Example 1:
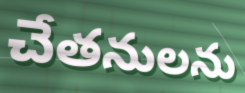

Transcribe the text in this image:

చేతనులను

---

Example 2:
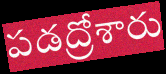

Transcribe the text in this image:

పడద్రోశారు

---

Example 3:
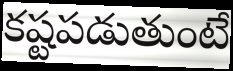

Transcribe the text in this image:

కష్టపడుతుంటే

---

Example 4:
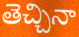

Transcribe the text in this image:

తెచ్చినా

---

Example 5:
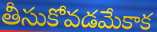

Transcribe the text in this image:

తీసుకోవడమేకాక